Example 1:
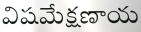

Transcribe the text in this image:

విషమేక్షణాయ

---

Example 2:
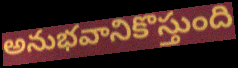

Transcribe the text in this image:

అనుభవానికొస్తుంది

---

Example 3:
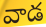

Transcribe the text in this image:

వాడ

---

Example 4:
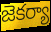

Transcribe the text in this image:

జెకర్యా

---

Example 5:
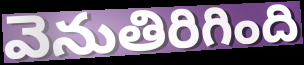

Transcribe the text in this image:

వెనుతిరిగింది